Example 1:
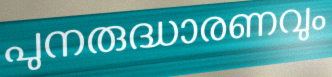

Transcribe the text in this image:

പുനരുദ്ധാരണവും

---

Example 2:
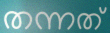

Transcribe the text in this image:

തന്നത്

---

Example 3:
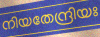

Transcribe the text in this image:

നിയതേന്ദ്രിയഃ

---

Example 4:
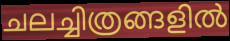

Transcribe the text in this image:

ചലച്ചിത്രങ്ങളിൽ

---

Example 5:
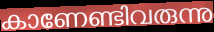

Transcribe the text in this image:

കാണേണ്ടിവരുന്നു